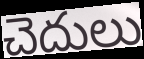
చెదులు